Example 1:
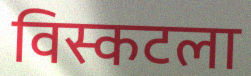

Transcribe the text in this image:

विस्कटला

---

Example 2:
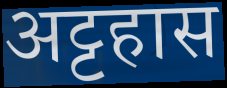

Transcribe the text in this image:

अट्टहास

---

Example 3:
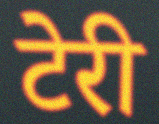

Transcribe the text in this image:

टेरी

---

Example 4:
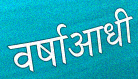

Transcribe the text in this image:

वर्षाआधी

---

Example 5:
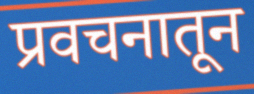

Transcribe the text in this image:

प्रवचनातून